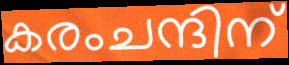
കരംചന്ദിന്